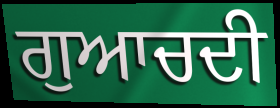
ਗੁਆਚਦੀ